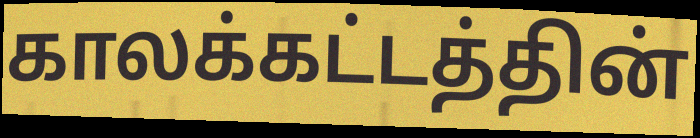
காலக்கட்டத்தின்